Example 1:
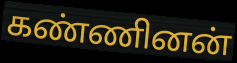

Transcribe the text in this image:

கண்ணினன்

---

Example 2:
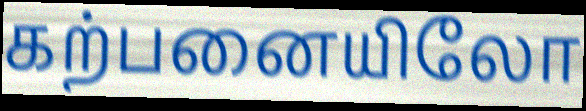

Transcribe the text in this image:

கற்பனையிலோ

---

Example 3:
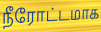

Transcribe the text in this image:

நீரோட்டமாக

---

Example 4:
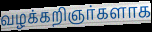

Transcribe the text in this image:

வழக்கறிஞர்களாக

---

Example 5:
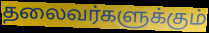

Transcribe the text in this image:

தலைவர்களுக்கும்